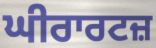
ਘੀਰਾਰਟਜ਼